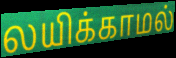
லயிக்காமல்